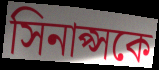
সিনাপ্সকে